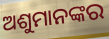
ଅଶୁମାନଙ୍କର